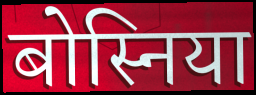
बोस्निया